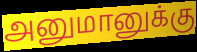
அனுமானுக்கு